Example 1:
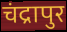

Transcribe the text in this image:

चंद्रापुर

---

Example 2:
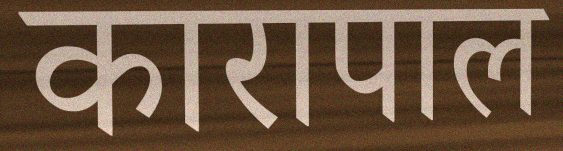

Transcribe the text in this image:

कारापाल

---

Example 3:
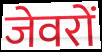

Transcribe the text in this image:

जेवरों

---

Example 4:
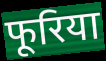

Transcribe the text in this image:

फूरिया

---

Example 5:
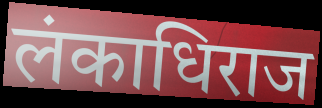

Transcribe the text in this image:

लंकाधिराज